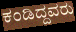
ಕಂಡಿದ್ದವರು